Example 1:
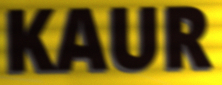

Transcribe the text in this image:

KAUR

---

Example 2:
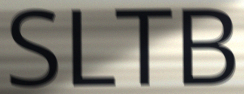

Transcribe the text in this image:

SLTB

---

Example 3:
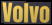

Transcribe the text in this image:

Volvo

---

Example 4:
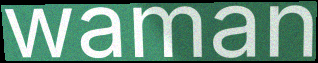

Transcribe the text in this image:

waman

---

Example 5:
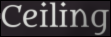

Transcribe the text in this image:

Ceiling